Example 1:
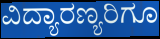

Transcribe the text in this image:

ವಿದ್ಯಾರಣ್ಯರಿಗೂ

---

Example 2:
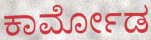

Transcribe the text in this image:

ಕಾರ್ಮೋಡ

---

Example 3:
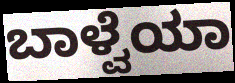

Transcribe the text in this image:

ಬಾಳ್ವೆಯಾ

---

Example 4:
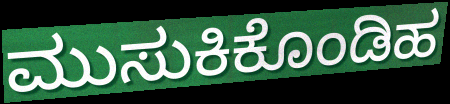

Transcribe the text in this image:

ಮುಸುಕಿಕೊಂಡಿಹ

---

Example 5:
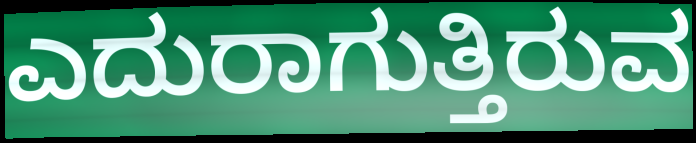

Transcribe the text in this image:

ಎದುರಾಗುತ್ತಿರುವ